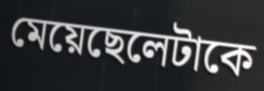
মেয়েছেলেটাকে